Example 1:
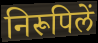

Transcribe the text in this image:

निरूपिलें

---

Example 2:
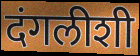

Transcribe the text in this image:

दंगलीशी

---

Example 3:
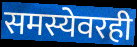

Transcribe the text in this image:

समस्येवरही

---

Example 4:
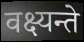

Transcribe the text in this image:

वक्ष्यन्ते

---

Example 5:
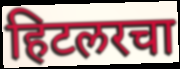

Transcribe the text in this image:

हिटलरचा